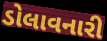
ડોલાવનારી